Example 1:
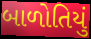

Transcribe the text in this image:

બાળોતિયું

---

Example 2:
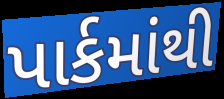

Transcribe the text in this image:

પાર્કમાંથી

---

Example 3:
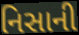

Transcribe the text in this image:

નિસાની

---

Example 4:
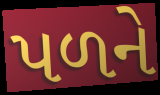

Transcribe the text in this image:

પળને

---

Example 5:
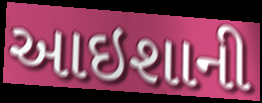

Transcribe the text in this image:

આઇશાની